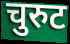
चुरुट